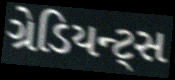
ગ્રેડિયન્ટ્સ